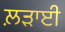
ਲ਼ੜਾਈ